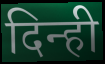
दिन्ही